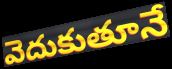
వెదుకుతూనే